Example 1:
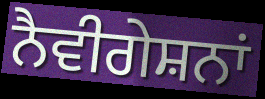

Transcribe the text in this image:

ਨੈਵੀਗੇਸ਼ਨਾਂ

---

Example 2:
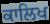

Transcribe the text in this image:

ਕਾਲਿਖ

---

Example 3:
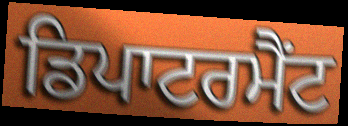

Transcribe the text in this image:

ਡਿਪਾਟਰਮੈਂਟ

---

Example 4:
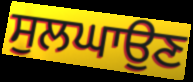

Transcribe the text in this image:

ਸੁਲਘਾਉਣ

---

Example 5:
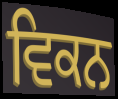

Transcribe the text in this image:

ਵਿਕਨ